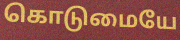
கொடுமையே